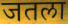
जतला